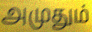
அமுதும்